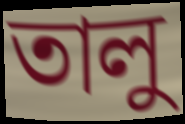
তালু